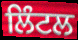
ਲਿੰਟਲ